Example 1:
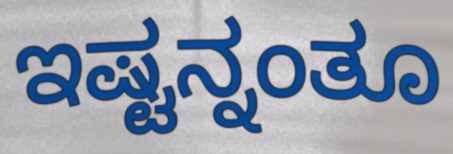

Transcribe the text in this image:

ಇಷ್ಟನ್ನಂತೂ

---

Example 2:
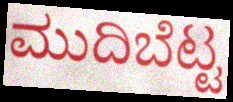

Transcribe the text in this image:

ಮುದಿಬೆಟ್ಟ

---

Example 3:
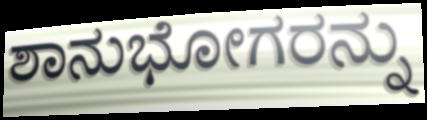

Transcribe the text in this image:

ಶಾನುಭೋಗರನ್ನು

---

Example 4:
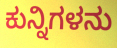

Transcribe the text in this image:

ಕುನ್ನಿಗಳನು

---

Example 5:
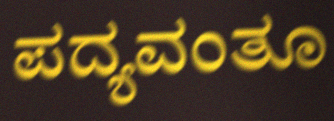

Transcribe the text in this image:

ಪದ್ಯವಂತೂ